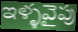
ఇళ్ళవైపు